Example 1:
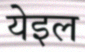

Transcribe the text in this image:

येइल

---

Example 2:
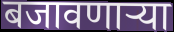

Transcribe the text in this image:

बजावणाऱ्या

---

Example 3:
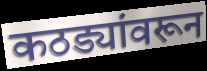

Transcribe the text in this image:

कठड्यांवरून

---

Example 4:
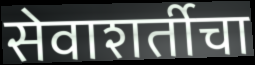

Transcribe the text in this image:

सेवाशर्तीचा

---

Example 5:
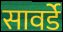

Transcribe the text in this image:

सावर्डे